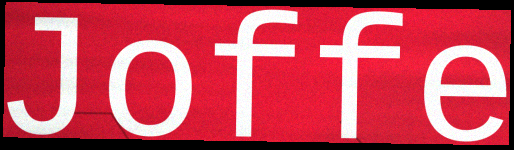
Joffe